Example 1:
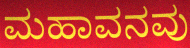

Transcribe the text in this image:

ಮಹಾವನವು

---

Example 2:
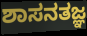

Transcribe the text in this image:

ಶಾಸನತಜ್ಞ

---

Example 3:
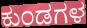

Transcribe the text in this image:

ಕುಂಡಗಳ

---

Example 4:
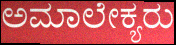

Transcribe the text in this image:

ಅಮಾಲೇಕ್ಯರು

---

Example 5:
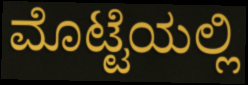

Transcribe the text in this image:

ಮೊಟ್ಟೆಯಲ್ಲಿ